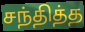
சந்தித்த